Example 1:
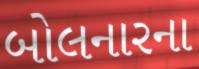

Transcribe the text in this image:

બોલનારના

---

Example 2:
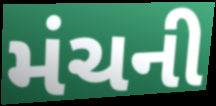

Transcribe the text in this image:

મંચની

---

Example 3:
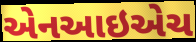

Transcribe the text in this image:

એનઆઇએચ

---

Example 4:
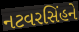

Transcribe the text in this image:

નટવરસિંહને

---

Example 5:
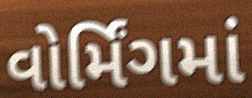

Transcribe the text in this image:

વોર્મિંગમાં